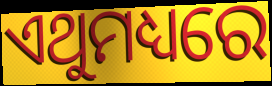
ଏଥୁମଧ୍ୟରେ